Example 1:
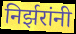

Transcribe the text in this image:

निर्झरांनी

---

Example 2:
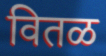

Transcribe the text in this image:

वितळ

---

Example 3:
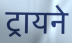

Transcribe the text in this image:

ट्रायने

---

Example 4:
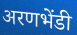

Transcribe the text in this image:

अरणभेंडी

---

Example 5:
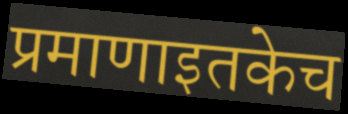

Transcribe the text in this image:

प्रमाणाइतकेच